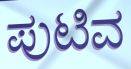
ಪುಟಿವ